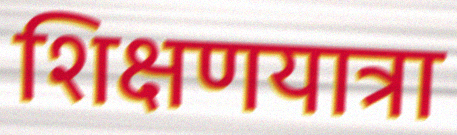
शिक्षणयात्रा